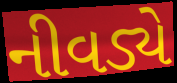
નીવડ્યે